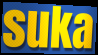
suka